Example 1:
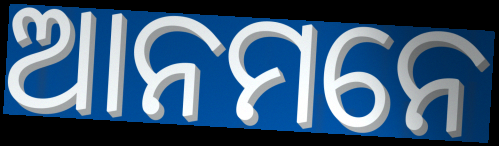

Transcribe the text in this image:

ଆନମନେ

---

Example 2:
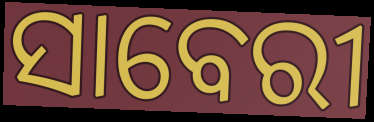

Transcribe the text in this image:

ସାବେରୀ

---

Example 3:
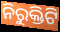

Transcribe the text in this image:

ନିରୁକ୍ତିଟି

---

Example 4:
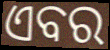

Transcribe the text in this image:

ଏବର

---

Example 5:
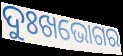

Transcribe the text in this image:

ଦୁଃଖଭୋଗର